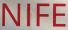
NIFE